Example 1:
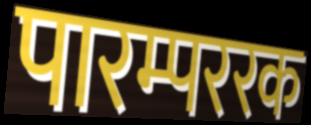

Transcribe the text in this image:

पारम्पररक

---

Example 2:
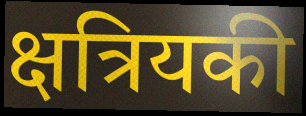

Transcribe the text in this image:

क्षत्रियकी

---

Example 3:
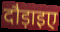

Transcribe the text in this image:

दौड़ाइए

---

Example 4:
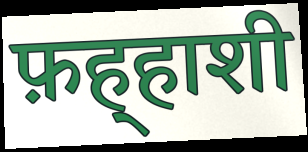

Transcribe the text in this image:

फ़ह्हाशी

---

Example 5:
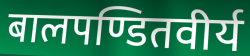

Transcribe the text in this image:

बालपण्डितवीर्य